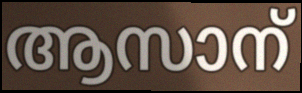
ആസാന്